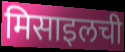
मिसाइलची